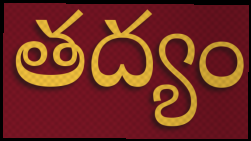
తద్యం